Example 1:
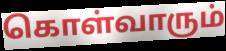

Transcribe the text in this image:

கொள்வாரும்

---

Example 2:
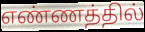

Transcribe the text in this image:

எண்ணத்தில்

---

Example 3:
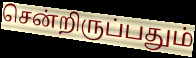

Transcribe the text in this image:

சென்றிருப்பதும்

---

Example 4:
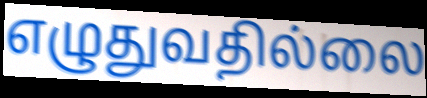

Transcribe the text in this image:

எழுதுவதில்லை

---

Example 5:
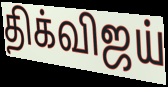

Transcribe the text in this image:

திக்விஜய்